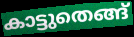
കാട്ടുതെങ്ങ്